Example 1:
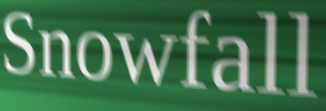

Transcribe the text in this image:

Snowfall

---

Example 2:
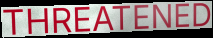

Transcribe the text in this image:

THREATENED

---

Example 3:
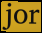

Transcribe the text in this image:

jor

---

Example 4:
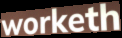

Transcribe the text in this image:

worketh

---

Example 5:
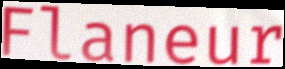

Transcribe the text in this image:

Flaneur